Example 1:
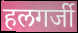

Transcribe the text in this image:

हलगर्जी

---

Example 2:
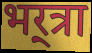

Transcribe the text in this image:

भर्त्रा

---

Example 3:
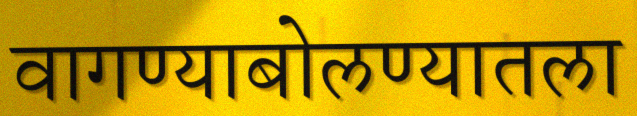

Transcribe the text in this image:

वागण्याबोलण्यातला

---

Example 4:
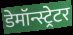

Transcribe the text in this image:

डेमॉन्स्ट्रेटर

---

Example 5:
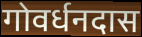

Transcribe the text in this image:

गोवर्धनदास